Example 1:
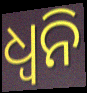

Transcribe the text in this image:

ଧ୍ବନି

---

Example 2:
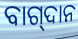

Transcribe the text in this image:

ବାଗ୍‍ଦାନ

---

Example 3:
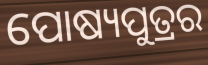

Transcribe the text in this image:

ପୋଷ୍ୟପୁତ୍ରର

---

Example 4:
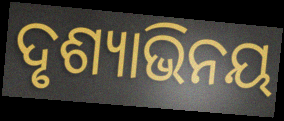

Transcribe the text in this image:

ଦୃଶ୍ୟାଭିନୟ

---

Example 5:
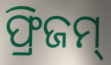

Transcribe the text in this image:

ଫ୍ରିଜମ୍